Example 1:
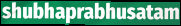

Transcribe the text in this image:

shubhaprabhusatam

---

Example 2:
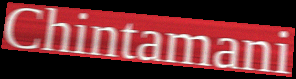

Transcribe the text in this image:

Chintamani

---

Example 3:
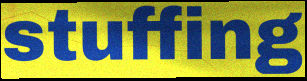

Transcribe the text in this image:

stuffing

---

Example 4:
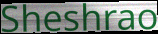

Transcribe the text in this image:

Sheshrao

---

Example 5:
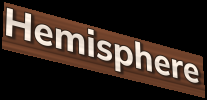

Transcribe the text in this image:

Hemisphere